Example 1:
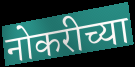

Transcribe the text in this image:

नोकरीच्या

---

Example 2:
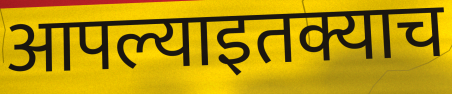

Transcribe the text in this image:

आपल्याइतक्याच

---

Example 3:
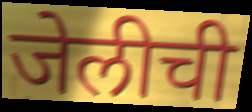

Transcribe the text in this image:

जेलीची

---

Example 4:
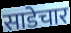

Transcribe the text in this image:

साडेचार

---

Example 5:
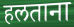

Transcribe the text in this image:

हलताना